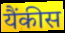
यैंकीस